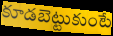
కూడబెట్టుకుంటే